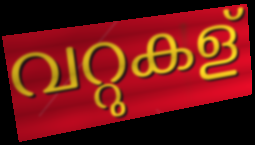
വറ്റുകള്